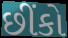
છીંકો